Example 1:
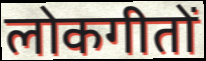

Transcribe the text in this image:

लोकगीतों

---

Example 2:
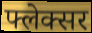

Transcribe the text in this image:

फ्लेक्सर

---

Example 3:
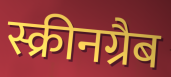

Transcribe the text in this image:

स्क्रीनग्रैब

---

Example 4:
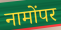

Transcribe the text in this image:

नामोंपर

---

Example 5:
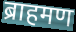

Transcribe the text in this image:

ब्राहमण